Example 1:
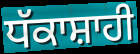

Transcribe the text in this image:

ਧੱਕਾਸ਼ਾਹੀ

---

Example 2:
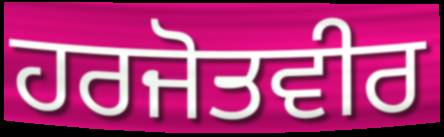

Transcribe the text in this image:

ਹਰਜੋਤਵੀਰ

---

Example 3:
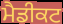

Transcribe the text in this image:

ਮੈਡੀਕਟ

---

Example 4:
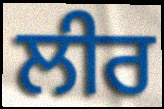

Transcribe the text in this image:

ਲੀਰ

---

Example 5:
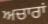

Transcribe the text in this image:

ਅਚਾਰਾਂ